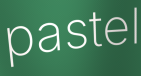
pastel